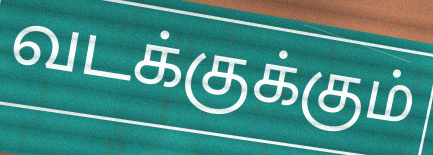
வடக்குக்கும்